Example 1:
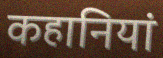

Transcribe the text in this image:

कहानियां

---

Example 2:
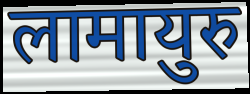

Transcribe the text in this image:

लामायुरु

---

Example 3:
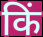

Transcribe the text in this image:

किं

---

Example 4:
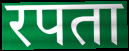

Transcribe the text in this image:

रपता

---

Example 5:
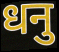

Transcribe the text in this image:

धनु